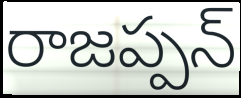
రాజప్పన్